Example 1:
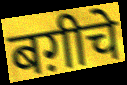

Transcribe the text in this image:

बग़ीचे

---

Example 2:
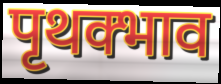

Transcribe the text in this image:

पृथक्भाव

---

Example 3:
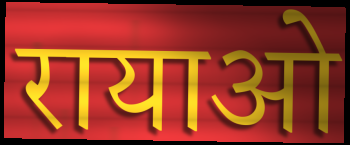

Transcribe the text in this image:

रायाओ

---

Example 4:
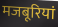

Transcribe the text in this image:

मजबूरियां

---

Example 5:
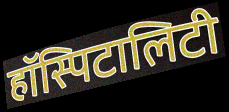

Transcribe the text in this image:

हॉस्पिटालिटी